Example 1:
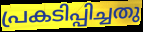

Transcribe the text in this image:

പ്രകടിപ്പിച്ചതു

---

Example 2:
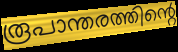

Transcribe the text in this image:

രൂപാന്തരത്തിന്റെ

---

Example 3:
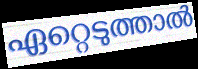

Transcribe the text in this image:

ഏറ്റെടുത്താൽ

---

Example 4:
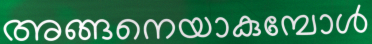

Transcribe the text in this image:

അങ്ങനെയാകുമ്പോൾ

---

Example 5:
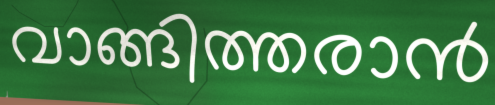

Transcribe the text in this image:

വാങ്ങിത്തരാൻ